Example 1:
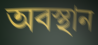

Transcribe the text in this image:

অবস্থান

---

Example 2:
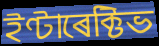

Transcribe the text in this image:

ইণ্টাৰেক্টিভ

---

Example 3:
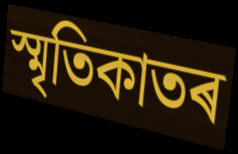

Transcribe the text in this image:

স্মৃতিকাতৰ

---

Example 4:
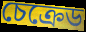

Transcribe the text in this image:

চেক্ৰেড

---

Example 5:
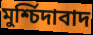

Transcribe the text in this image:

মুৰ্শ্চিদাবাদ